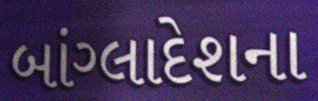
બાંગ્લાદેશના